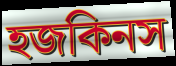
হজকিনস